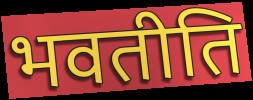
भवतीति